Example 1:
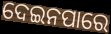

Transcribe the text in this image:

ଦେଇନପାରେ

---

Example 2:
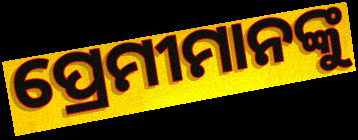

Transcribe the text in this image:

ପ୍ରେମୀମାନଙ୍କୁ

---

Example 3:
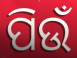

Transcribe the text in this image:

ପିଉଁ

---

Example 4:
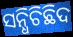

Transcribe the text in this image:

ସନ୍ଧିଚିଛିଦ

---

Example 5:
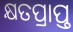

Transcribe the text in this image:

କ୍ଷତପ୍ରାପ୍ତ